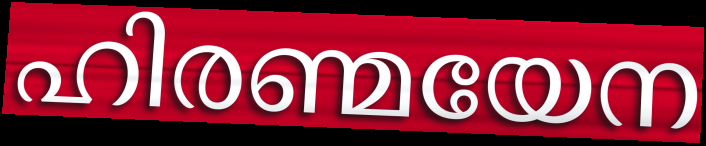
ഹിരണ്മയേന